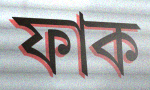
ফাক